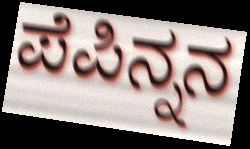
ಪೆಪಿನ್ನನ